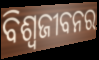
ବିଶ୍ଵଜୀବନର